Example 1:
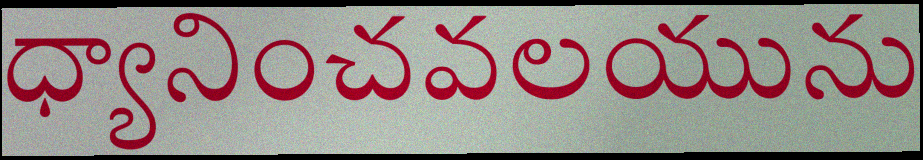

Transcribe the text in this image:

ధ్యానించవలయును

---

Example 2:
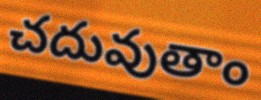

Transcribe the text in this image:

చదువుతాం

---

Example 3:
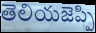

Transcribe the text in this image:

తెలియజెప్పి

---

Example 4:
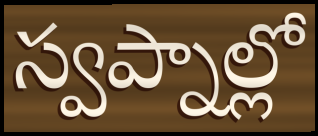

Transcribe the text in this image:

స్వప్నాల్లో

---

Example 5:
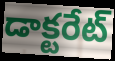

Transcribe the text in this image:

డాక్టరేట్